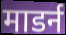
माडर्न